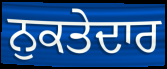
ਨੁਕਤੇਦਾਰ